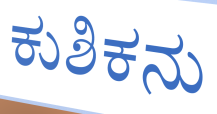
ಕುಶಿಕನು